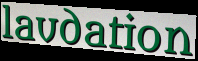
laudation